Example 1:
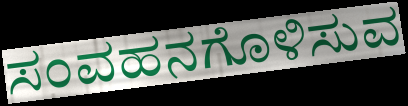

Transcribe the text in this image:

ಸಂವಹನಗೊಳಿಸುವ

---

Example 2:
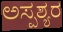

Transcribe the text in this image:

ಅಸ್ಪಶ್ಯರ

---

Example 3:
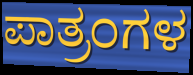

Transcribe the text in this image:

ಪಾತ್ರಂಗಳ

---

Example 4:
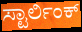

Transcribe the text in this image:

ಸ್ಟಾರ್ಲಿಂಕ್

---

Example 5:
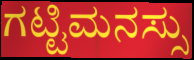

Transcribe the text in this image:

ಗಟ್ಟಿಮನಸ್ಸು